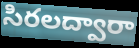
సిరలద్వారా